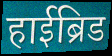
हाईब्रिड